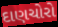
દાણચોરો